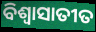
ବିଶ୍ୱାସାତୀତ